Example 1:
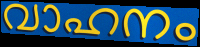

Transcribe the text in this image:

വാഹനം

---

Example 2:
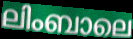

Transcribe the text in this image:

ലിംബാലെ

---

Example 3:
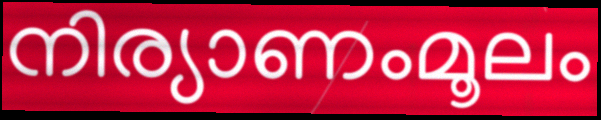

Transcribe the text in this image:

നിര്യാണംമൂലം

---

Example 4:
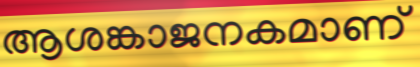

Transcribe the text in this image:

ആശങ്കാജനകമാണ്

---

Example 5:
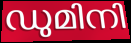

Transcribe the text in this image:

ഡുമിനി